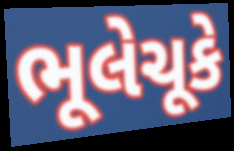
ભૂલેચૂકે